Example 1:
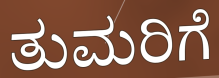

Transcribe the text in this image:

ತುಮರಿಗೆ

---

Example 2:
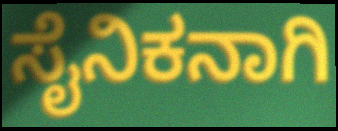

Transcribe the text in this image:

ಸೈನಿಕನಾಗಿ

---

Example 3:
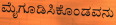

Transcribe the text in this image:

ಮೈಗೂಡಿಸಿಕೊಂಡವನು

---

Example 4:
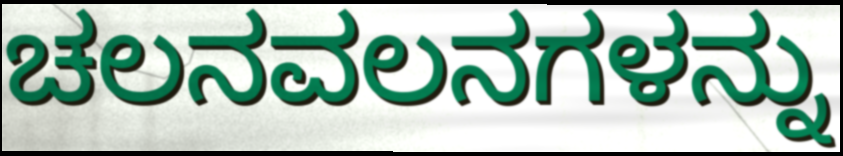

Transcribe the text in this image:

ಚಲನವಲನಗಳನ್ನು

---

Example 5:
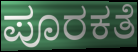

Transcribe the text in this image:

ಪೂರಕತೆ